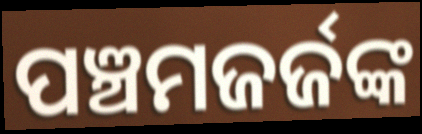
ପଞ୍ଚମଜର୍ଜଙ୍କ